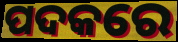
ପଦକରେ